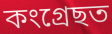
কংগ্ৰেছত